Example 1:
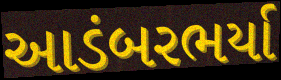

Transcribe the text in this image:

આડંબરભર્યા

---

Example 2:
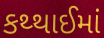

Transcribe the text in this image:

કથ્થાઈમાં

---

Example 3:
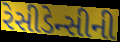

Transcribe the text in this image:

રેસીડેન્સીની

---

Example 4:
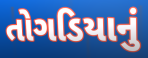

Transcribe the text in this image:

તોગડિયાનું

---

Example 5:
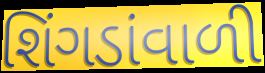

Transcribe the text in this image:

શિંગડાંવાળી